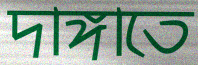
দাঙ্গাতে